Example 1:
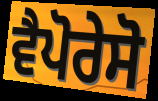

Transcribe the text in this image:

ਵੈਪੋਰੇਸੋ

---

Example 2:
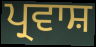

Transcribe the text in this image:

ਪ੍ਰਵਾਸ਼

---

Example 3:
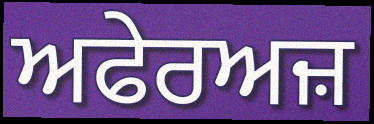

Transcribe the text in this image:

ਅਫੇਰਅਜ਼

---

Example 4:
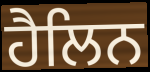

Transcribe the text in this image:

ਹੈਲਿਨ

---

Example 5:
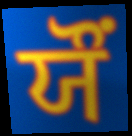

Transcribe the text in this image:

ਯੌਂ